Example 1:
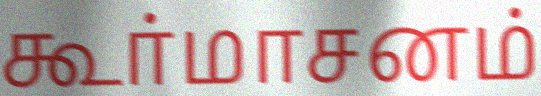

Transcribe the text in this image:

கூர்மாசனம்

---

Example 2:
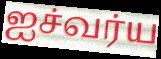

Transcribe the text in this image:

ஐச்வர்ய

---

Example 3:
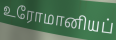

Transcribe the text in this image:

உரோமானியப்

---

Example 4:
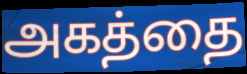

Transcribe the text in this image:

அகத்தை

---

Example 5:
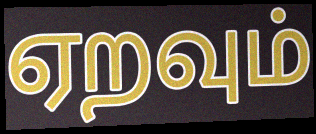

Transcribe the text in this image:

ஏறவும்